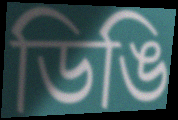
ডিঙি